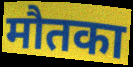
मौतका